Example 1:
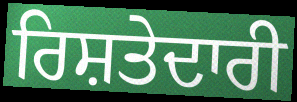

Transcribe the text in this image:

ਰਿਸ਼ਤੇਦਾਰੀ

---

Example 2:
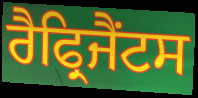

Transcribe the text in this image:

ਰੈਫ੍ਰਿਜੈਂਟਸ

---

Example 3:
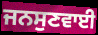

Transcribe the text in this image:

ਜਨਸੁਣਵਾਈ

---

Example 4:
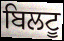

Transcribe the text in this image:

ਬਿਲਟੂ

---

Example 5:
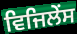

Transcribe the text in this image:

ਵਿਜਿਲੇਂਸ